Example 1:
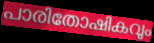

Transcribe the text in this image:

പാരിതോഷികവും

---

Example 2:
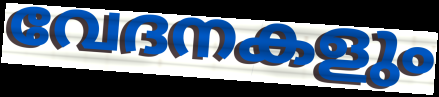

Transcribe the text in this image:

വേദനകളും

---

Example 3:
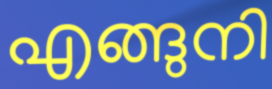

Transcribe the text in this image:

എങ്ങുനി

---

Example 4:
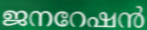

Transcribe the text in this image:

ജനറേഷൻ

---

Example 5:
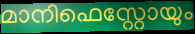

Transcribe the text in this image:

മാനിഫെസ്റ്റോയും